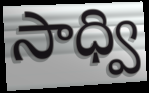
సాధ్వి